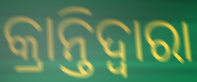
କ୍ରାନ୍ତିଦ୍ୱାରା